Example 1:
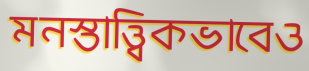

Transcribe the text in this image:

মনস্তাত্ত্বিকভাবেও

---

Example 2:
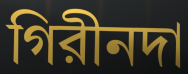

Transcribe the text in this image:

গিরীনদা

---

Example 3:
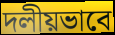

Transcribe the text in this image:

দলীয়ভাবে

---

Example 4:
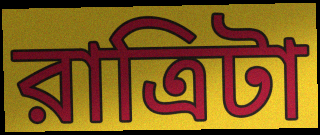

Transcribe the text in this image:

রাত্রিটা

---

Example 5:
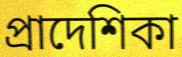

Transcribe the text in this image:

প্রাদেশিকা